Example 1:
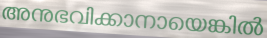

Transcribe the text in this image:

അനുഭവിക്കാനായെങ്കിൽ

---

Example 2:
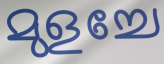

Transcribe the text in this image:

മുളച്ചേ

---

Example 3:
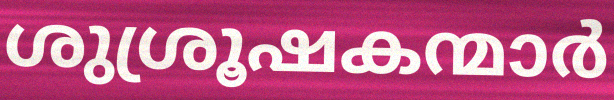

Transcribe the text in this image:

ശുശ്രൂഷകന്മാർ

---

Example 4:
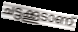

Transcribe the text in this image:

ചട്ടക്കൂടാണ്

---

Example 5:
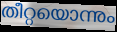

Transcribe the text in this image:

തീറ്റയൊന്നും